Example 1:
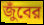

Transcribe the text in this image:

জুঁবের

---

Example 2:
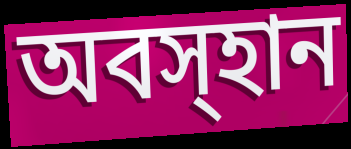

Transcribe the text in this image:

অবস্হান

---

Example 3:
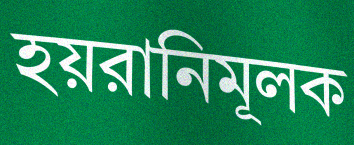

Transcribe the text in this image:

হয়রানিমূলক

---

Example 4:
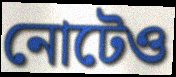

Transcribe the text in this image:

নোটেও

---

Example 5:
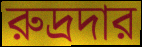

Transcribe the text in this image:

রুদ্রদার